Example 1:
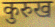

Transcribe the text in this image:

कुरुख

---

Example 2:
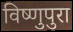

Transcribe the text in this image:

विष्णुपुरा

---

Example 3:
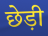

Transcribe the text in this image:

छेड़ी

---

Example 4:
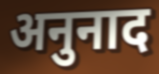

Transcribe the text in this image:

अनुनाद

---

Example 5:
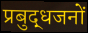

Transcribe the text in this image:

प्रबुद्धजनों